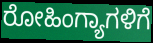
ರೋಹಿಂಗ್ಯಾಗಳಿಗೆ